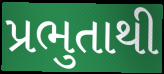
પ્રભુતાથી